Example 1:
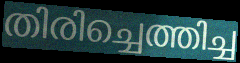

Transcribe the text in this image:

തിരിച്ചെത്തിച്ച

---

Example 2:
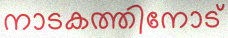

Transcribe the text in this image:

നാടകത്തിനോട്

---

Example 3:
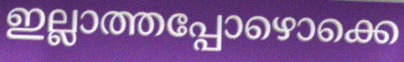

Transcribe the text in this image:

ഇല്ലാത്തപ്പോഴൊക്കെ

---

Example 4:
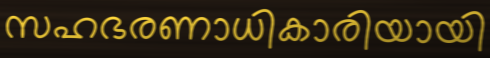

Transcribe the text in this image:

സഹഭരണാധികാരിയായി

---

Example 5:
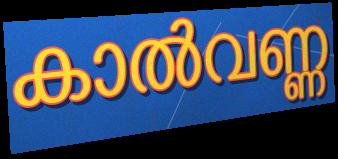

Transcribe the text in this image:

കാൽവണ്ണ